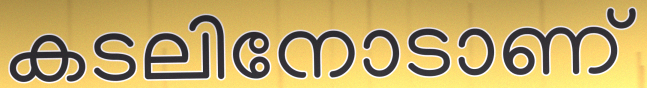
കടലിനോടാണ്